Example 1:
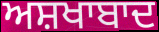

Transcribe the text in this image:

ਅਸ਼ਖਾਬਾਦ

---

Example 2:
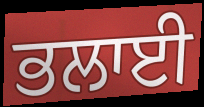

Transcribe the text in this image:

ਭਲਾਈ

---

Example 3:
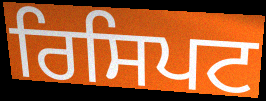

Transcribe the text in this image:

ਰਿਸਿਪਟ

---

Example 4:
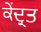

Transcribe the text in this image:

ਕੇਂਦ੍ਰਤ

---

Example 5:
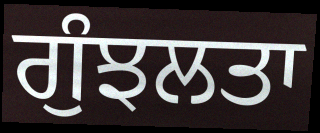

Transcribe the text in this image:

ਗੁੰਝਲਤਾ